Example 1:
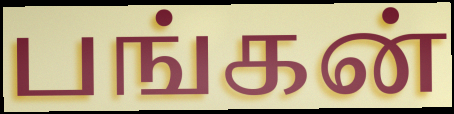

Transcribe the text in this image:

பங்கன்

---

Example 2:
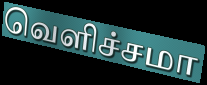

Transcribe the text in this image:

வெளிச்சமா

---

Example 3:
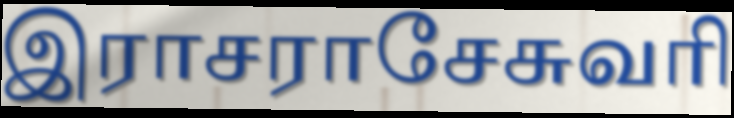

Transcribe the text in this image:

இராசராசேசுவரி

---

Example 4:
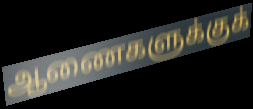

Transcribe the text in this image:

ஆணைகளுக்குக்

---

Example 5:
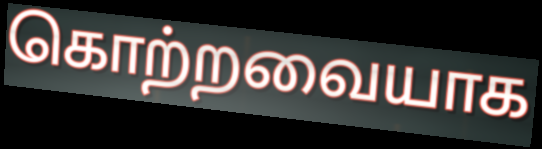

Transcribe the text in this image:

கொற்றவையாக